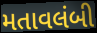
મતાવલંબી